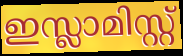
ഇസ്ലാമിസ്റ്റ്